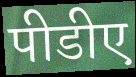
पीडीए